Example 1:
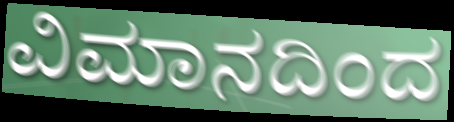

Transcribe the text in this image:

ವಿಮಾನದಿಂದ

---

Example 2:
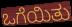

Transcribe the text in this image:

ಒಗೆಯಿತು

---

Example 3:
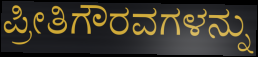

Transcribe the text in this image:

ಪ್ರೀತಿಗೌರವಗಳನ್ನು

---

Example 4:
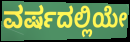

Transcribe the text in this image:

ವರ್ಷದಲ್ಲಿಯೇ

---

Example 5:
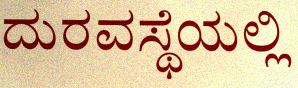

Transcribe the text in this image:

ದುರವಸ್ಥೆಯಲ್ಲಿ